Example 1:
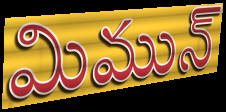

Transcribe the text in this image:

మిమున్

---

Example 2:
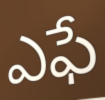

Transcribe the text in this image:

ఎఫే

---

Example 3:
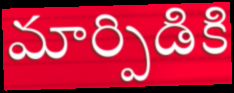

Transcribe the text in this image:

మార్పిడికి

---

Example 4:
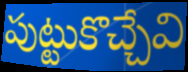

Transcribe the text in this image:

పుట్టుకొచ్చేవి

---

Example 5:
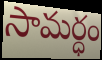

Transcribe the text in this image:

సామర్ధం